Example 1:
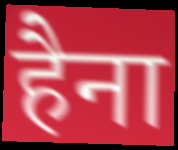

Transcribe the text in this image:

हैना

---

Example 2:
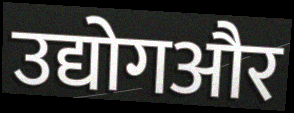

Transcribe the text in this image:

उद्योगऔर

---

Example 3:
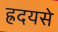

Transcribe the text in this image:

ह्रदयसे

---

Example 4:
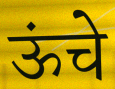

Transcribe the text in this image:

ऊंचे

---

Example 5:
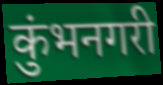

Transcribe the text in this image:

कुंभनगरी